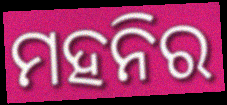
ମହନିର